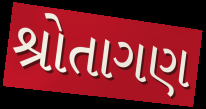
શ્રોતાગણ